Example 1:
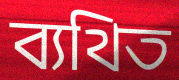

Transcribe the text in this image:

ব্যথিত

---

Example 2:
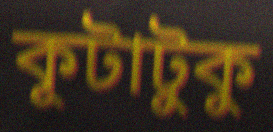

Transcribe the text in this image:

কূটাটুকু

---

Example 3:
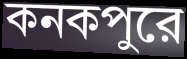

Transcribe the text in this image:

কনকপুরে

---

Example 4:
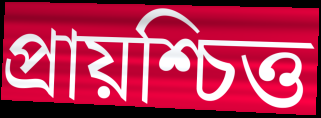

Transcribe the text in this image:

প্রায়শ্চিত্ত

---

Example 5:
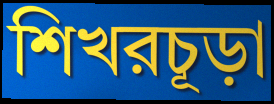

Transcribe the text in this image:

শিখরচূড়া